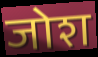
जोश